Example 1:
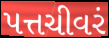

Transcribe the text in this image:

પત્તચીવરં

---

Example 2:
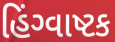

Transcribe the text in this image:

હિંગ્વાષ્ટક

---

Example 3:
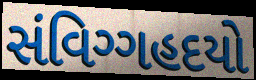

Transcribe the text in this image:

સંવિગ્ગહદયો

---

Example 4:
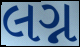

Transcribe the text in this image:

લગ્ન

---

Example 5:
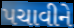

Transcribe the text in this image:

પચાવીને